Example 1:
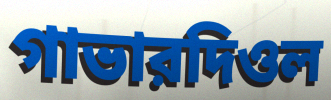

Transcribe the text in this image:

গাভারদিওল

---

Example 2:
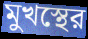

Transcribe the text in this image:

মুখস্থের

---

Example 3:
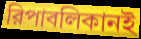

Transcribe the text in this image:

রিপাবলিকানই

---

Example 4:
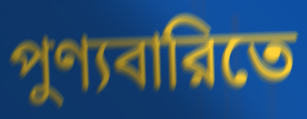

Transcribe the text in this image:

পুণ্যবারিতে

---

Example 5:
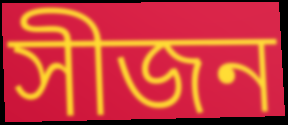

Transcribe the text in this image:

সীজন